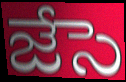
జేసె